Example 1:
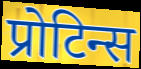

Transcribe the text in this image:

प्रोटिन्स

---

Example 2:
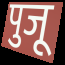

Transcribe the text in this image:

पुजू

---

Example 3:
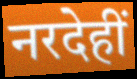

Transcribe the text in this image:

नरदेहीं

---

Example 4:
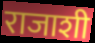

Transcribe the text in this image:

राजाशी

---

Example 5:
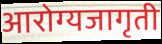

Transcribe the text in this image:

आरोग्यजागृती